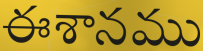
ఈశానము